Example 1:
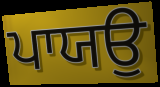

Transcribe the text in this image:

ਪਾਯਉ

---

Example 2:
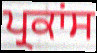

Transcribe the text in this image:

ਪ੍ਰਕਾਂਸ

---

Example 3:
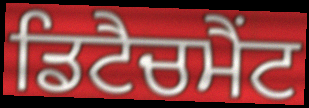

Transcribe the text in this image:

ਡਿਟੈਚਮੈਂਟ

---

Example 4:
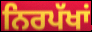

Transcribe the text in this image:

ਨਿਰਪੱਖਾਂ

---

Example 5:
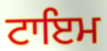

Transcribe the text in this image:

ਟਾਇਮ